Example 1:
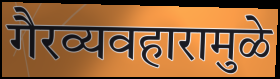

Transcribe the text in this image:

गैरव्यवहारामुळे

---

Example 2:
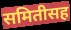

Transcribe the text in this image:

समितीसह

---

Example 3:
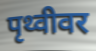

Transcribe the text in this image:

पृथ्वीवर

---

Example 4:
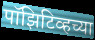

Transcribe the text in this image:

पॉझिटिव्हच्या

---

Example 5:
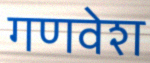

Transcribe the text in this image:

गणवेश